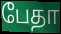
பேதா